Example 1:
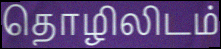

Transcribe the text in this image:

தொழிலிடம்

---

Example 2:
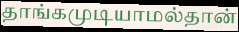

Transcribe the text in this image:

தாங்கமுடியாமல்தான்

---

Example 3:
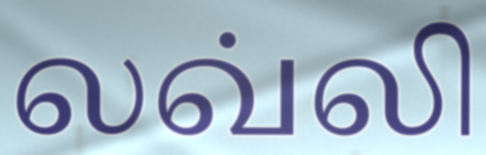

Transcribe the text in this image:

லவ்லி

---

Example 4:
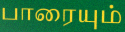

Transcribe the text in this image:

பாரையும்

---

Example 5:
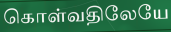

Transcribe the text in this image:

கொள்வதிலேயே